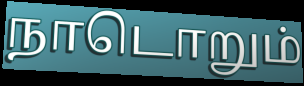
நாடொறும்